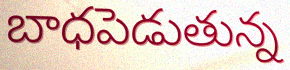
బాధపెడుతున్న